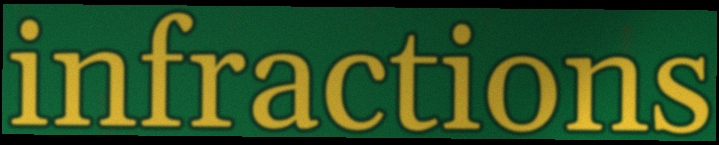
infractions